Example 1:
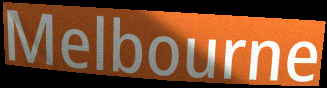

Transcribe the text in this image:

Melbourne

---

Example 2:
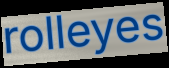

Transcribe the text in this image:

rolleyes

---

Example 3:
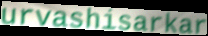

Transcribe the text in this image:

urvashisarkar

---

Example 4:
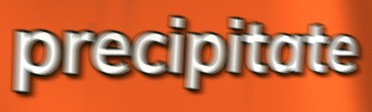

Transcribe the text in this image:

precipitate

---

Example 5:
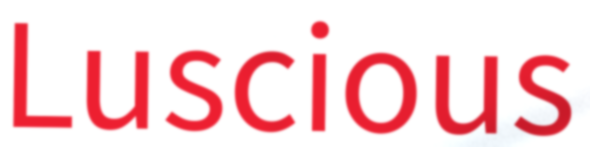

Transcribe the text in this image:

Luscious